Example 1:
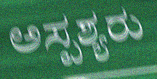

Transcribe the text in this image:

ಅಸ್ಪಶ್ಯರು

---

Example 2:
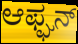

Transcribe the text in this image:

ಆಫ್ಘನ್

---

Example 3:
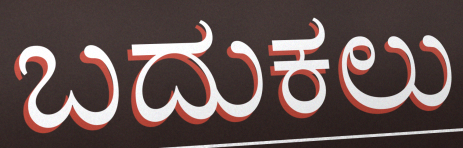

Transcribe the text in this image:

ಬದುಕಲು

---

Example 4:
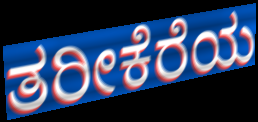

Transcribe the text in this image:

ತರೀಕೆರೆಯ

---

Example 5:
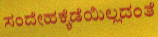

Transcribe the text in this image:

ಸಂದೇಹಕ್ಕೆಡೆಯಿಲ್ಲದಂತೆ